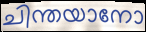
ചിന്തയാനോ